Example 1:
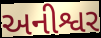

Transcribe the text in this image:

અનીશ્વર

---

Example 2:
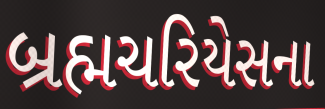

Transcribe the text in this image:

બ્રહ્મચરિયેસના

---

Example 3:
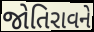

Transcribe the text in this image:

જોતિરાવને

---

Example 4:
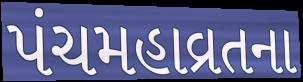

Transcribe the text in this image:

પંચમહાવ્રતના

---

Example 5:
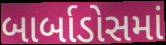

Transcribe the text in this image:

બાર્બાડોસમાં